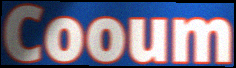
Cooum